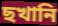
ছখানি